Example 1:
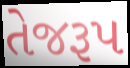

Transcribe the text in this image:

તેજરૂપ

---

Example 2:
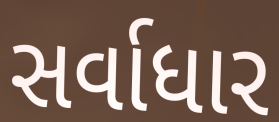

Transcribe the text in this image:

સર્વાધાર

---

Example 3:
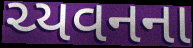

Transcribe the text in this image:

ચ્યવનના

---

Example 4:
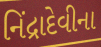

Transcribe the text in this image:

નિંદ્રાદેવીના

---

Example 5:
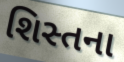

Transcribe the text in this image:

શિસ્તના